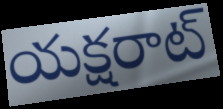
యక్షరాట్